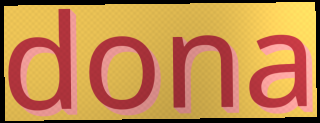
dona